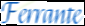
Ferrante